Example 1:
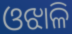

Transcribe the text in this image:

ଓଝାଳି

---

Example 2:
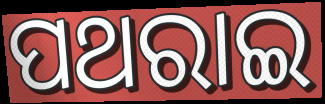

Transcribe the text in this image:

ପଥରାଇ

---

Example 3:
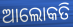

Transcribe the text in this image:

ଆଲୋକତି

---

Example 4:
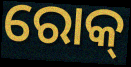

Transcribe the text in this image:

ରୋକ୍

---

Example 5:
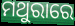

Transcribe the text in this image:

ମଥୁରାରେ